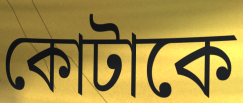
কোটাকে